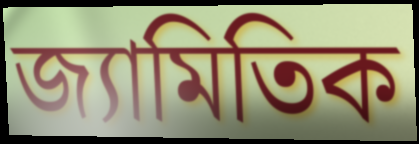
জ্যামিতিক